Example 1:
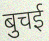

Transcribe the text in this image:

बुचई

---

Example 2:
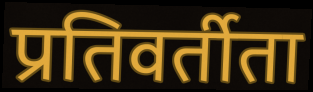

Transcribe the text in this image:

प्रतिवर्तीता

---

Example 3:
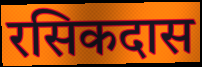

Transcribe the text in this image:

रसिकदास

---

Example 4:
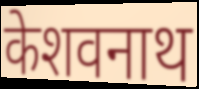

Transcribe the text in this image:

केशवनाथ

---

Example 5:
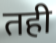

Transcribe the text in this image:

तही